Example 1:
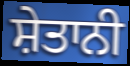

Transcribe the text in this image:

ਸ਼ੇਤਾਨੀ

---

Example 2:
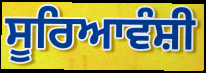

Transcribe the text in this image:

ਸੂਰਿਆਵੰਸ਼ੀ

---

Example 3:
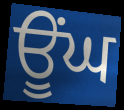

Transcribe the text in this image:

ਊਂਘ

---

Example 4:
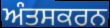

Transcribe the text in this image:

ਅੰਤਸਕਰਨ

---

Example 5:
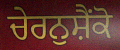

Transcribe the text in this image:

ਚੇਰਨੁਸ਼ੈਂਕੋ